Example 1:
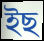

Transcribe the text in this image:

ইছ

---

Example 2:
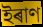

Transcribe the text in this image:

ইৰাণ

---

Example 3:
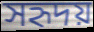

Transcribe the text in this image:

সহৃদয়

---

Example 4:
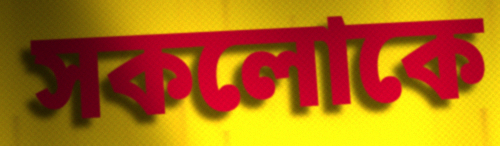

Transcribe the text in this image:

সকলোকে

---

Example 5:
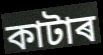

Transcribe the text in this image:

কাটাৰ